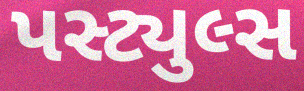
પસ્ટ્યુલ્સ